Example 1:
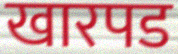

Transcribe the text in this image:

खारपड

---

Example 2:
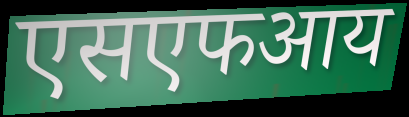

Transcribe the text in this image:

एसएफआय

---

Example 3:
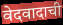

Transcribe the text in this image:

वेदवादाची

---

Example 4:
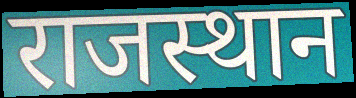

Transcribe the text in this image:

राजस्थान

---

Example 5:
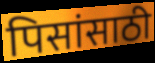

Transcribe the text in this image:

पिसांसाठी